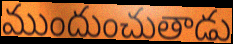
ముందుంచుతాడు